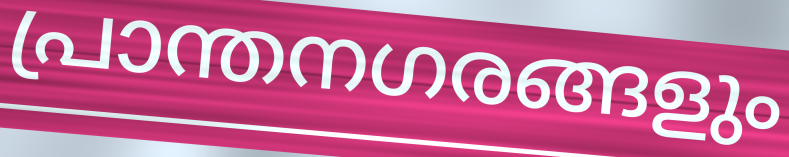
പ്രാന്തനഗരങ്ങളും